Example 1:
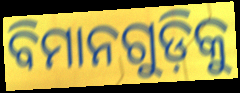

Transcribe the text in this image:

ବିମାନଗୁଡ଼ିକୁ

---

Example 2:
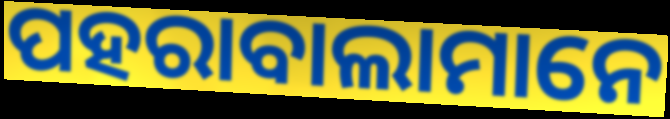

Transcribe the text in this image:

ପହରାବାଲାମାନେ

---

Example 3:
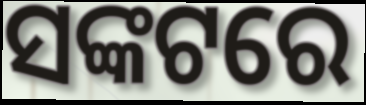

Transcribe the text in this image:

ସଙ୍କଟରେ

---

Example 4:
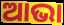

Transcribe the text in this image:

ଆଭା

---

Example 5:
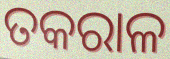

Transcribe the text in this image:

ତକରାଳ